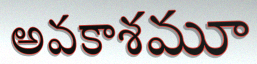
అవకాశమూ